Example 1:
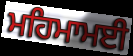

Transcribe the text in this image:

ਮਹਿਮਾਮਈ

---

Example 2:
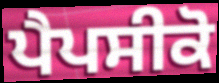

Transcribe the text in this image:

ਪੈਪਸੀਕੋ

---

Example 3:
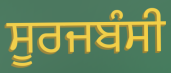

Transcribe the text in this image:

ਸੂਰਜਬੰਸੀ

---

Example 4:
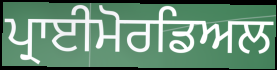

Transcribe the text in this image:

ਪ੍ਰਾਈਮੋਰਡਿਅਲ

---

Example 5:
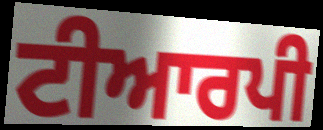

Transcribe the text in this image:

ਟੀਆਰਪੀ